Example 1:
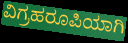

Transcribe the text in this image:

ವಿಗ್ರಹರೂಪಿಯಾಗಿ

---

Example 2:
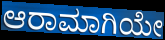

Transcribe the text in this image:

ಆರಾಮಾಗಿಯೇ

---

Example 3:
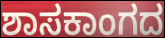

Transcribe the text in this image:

ಶಾಸಕಾಂಗದ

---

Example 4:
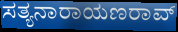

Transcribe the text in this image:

ಸತ್ಯನಾರಾಯಣರಾವ್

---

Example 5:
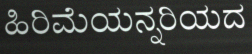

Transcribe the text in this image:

ಹಿರಿಮೆಯನ್ನರಿಯದ